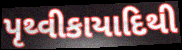
પૃથ્વીકાયાદિથી